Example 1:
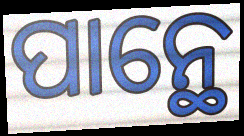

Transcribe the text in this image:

ପାନ୍ଥେ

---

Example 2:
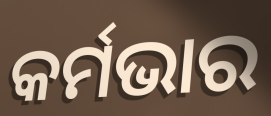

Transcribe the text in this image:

କର୍ମଭାର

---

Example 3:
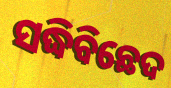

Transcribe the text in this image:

ସଦ୍ଧିବିଛେଦ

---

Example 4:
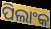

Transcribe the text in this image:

ପିଲାଂକ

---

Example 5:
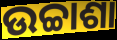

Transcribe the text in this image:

ଉଚ୍ଚାଶା